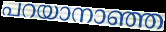
പറയാനാഞ്ഞ